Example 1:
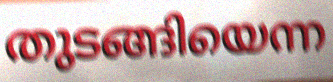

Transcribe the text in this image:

തുടങ്ങിയെന്ന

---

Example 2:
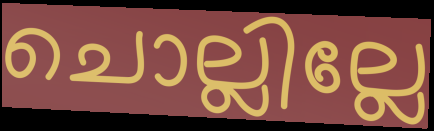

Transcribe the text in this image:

ചൊല്ലില്ലേ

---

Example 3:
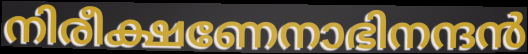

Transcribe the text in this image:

നിരീക്ഷണേനാഭിനന്ദൻ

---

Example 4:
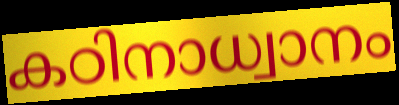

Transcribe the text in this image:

കഠിനാധ്വാനം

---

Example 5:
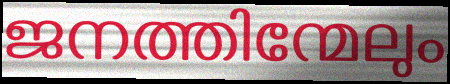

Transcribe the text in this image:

ജനത്തിന്മേലും